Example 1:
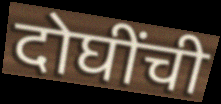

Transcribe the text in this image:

दोघींची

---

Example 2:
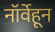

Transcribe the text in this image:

नॉर्वेहून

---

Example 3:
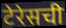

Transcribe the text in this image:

टेरेसची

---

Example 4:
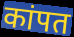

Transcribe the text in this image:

कांपत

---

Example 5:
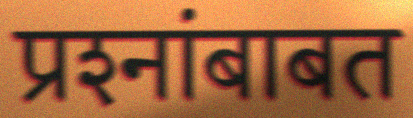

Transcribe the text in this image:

प्रश्‍नांबाबत